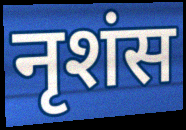
नृशंस